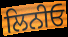
ਲਿਨੀਓ